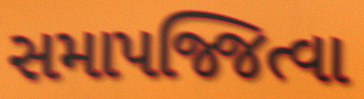
સમાપજ્જિત્વા